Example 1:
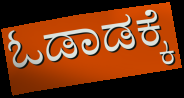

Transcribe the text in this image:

ಓಡಾಡಕ್ಕೆ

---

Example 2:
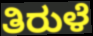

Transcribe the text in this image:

ತಿರುಳೆ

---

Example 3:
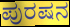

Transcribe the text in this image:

ಪುರಷನ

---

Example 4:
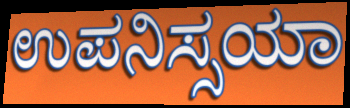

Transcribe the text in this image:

ಉಪನಿಸ್ಸಯಾ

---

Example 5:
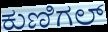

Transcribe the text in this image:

ಕುಣಿಗಲ್